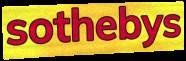
sothebys